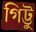
গিট্টু